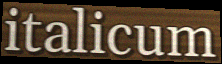
italicum